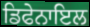
ਡਿਫੇਨਾਇਲ